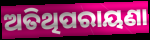
ଅତିଥିପରାୟଣା